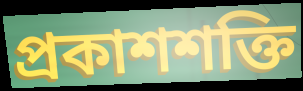
প্রকাশশক্তি